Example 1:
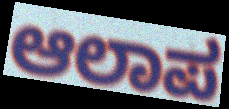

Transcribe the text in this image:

ಆಲಾಪ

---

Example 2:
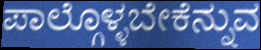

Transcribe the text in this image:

ಪಾಲ್ಗೊಳ್ಳಬೇಕೆನ್ನುವ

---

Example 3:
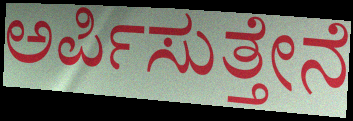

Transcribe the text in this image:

ಅರ್ಪಿಸುತ್ತೇನೆ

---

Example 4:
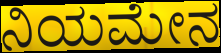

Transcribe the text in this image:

ನಿಯಮೇನ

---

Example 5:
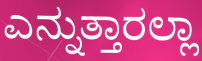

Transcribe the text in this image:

ಎನ್ನುತ್ತಾರಲ್ಲಾ